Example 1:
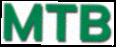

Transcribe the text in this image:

MTB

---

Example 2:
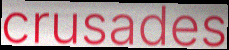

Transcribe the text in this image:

crusades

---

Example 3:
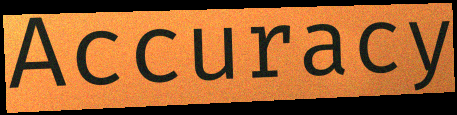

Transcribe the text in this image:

Accuracy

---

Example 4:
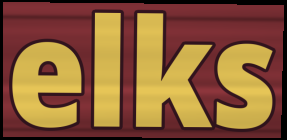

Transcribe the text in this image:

elks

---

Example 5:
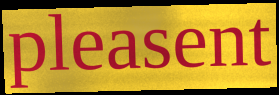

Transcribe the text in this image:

pleasent